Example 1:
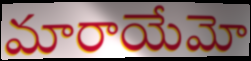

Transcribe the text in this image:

మారాయేమో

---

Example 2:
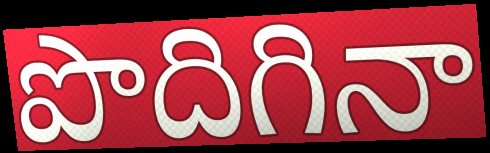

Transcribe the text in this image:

పొదిగినా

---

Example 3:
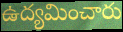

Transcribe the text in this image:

ఉద్యమించారు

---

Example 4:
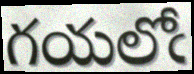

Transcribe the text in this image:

గయలోఁ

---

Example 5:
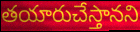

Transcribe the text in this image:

తయారుచేస్తానని